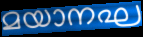
മയാനഘ